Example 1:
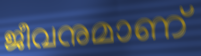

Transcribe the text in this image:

ജീവനുമാണ്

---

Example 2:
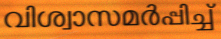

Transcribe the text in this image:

വിശ്വാസമർപ്പിച്ച്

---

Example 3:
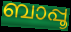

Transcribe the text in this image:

ബാപ്പൂ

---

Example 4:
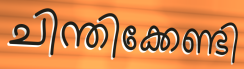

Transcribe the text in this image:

ചിന്തിക്കേണ്ടി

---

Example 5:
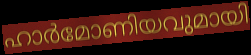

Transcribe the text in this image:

ഹാർമോണിയവുമായി